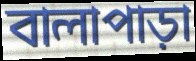
বালাপাড়া